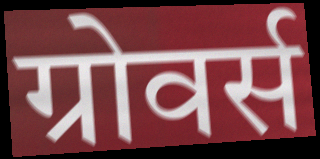
ग्रोवर्स